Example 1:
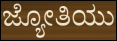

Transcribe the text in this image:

ಜ್ಯೋತಿಯು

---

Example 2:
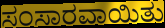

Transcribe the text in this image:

ಸಂಸಾರವಾಯಿತು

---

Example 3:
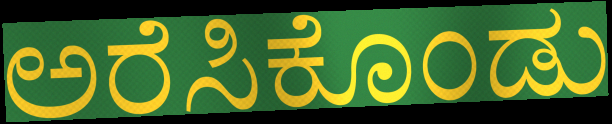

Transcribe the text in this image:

ಅರೆಸಿಕೊಂಡು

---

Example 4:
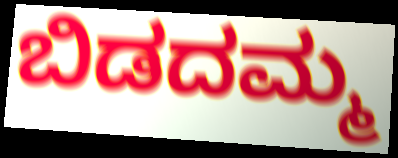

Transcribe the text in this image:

ಬಿಡದಮ್ಮ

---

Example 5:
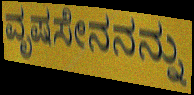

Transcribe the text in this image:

ವೃಷಸೇನನನ್ನು